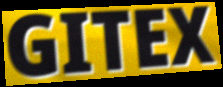
GITEX